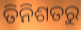
ତିନିଶତରୁ